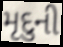
મૃદુની